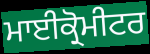
ਮਾਈਕ੍ਰੋਮੀਟਰ